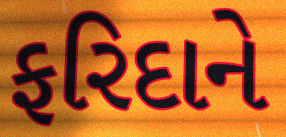
ફરિદાને